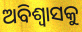
ଅବିଶ୍ୱାସକୁ